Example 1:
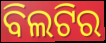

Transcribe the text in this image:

ବିଲଟିର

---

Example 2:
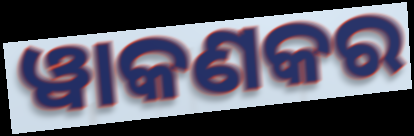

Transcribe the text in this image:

ୱାକଣକର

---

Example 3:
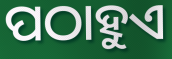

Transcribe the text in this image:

ପଠାହୁଏ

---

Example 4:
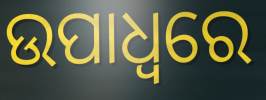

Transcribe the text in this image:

ଉପାଧ୍ଵରେ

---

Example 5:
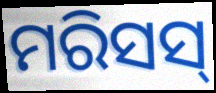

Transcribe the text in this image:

ମରିସସ୍